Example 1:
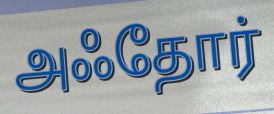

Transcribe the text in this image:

அஃதோர்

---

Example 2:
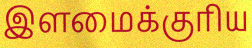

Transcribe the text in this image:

இளமைக்குரிய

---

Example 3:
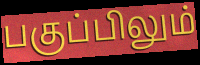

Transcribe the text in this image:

பகுப்பிலும்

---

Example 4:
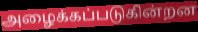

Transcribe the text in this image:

அழைக்கப்படுகின்றன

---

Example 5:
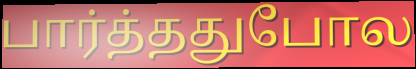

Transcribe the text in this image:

பார்த்ததுபோல